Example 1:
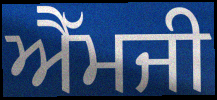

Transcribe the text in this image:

ਐੱਮਜੀ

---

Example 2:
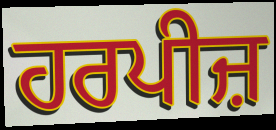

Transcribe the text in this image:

ਹਰਪੀਜ਼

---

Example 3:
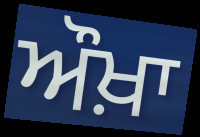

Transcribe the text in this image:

ਔਖ਼ਾ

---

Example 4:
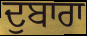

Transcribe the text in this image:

ਦੁਬਾਰਾ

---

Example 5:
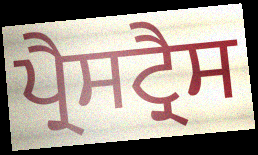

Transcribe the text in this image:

ਪ੍ਰੈਸਟ੍ਰੈਸ